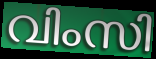
വിംസി